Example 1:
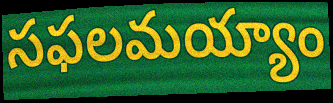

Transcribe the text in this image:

సఫలమయ్యాం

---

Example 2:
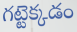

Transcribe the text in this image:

గట్టెక్కడం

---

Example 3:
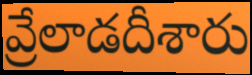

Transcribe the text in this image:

వ్రేలాడదీశారు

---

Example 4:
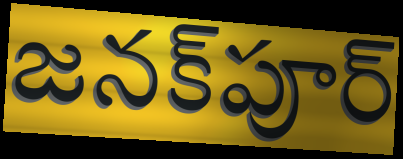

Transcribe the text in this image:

జనక్‌పూర్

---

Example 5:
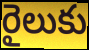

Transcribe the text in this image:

రైలుకు